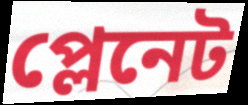
প্লেনেট